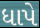
ધાપે